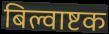
बिल्वाष्टक